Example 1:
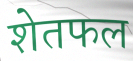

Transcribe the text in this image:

शेतफल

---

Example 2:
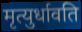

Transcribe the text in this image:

मृत्युर्धावति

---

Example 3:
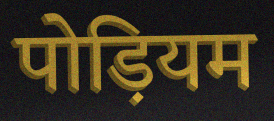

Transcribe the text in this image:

पोड़ियम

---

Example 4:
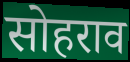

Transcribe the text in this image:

सोहराव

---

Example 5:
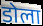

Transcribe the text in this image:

डोला